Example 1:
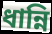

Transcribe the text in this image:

ধান্নি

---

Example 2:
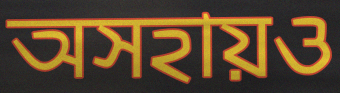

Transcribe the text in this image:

অসহায়ও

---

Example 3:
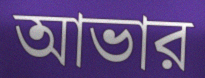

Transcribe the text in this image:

আভার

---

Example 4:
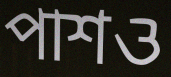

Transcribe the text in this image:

পাশও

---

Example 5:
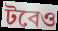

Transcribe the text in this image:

টবেও